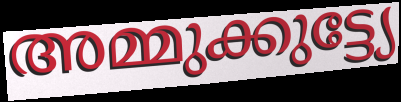
അമ്മുക്കുട്ട്യേ